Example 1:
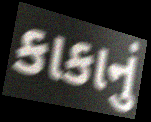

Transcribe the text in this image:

કાકાનું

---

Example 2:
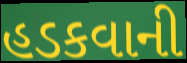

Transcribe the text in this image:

હડકવાની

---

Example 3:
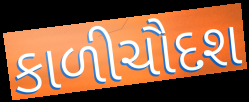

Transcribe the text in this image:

કાળીચૌદશ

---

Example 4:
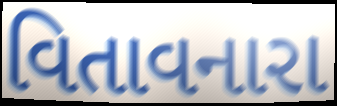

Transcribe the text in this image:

વિતાવનારા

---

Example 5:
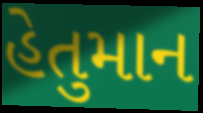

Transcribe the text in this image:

હેતુમાન